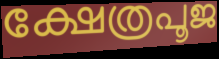
ക്ഷേത്രപൂജ